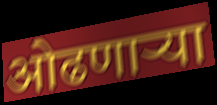
ओढणार्‍या